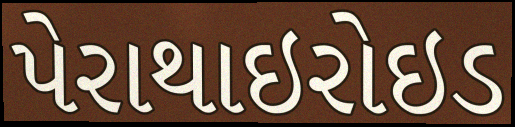
પેરાથાઇરોઇડ